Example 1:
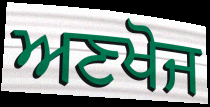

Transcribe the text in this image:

ਅਣਖੋਜ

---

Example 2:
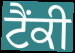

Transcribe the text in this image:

ਟੈਂਕੀ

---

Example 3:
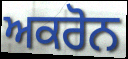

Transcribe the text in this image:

ਅਕਰੋਨ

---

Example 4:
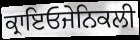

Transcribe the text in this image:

ਕ੍ਰਾਇਓਜੇਨਿਕਲੀ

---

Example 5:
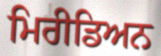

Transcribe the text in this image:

ਮਿਰੀਡਿਅਨ